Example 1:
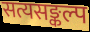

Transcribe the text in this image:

सत्यसङ्कल्प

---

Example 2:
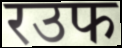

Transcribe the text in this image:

रउफ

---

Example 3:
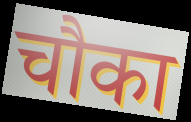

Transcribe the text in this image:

चौका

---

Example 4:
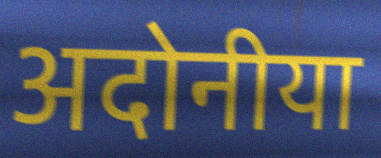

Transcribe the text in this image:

अदोनीया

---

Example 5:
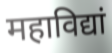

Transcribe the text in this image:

महाविद्यां